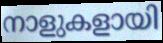
നാളുകളായി